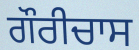
ਗੌਰੀਚਾਸ